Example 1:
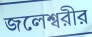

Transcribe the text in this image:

জলেশ্বরীর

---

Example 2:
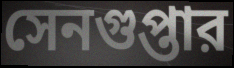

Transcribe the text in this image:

সেনগুপ্তার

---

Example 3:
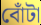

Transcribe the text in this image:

বোঁটা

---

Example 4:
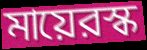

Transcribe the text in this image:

মায়েরস্ক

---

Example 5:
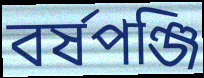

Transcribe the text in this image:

বর্ষপঞ্জি